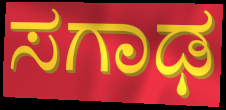
ಸಗಾಢ